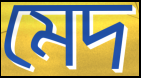
মেদ